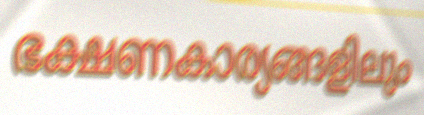
ഭക്ഷണകാര്യങ്ങളിലും